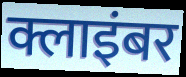
क्लाइंबर